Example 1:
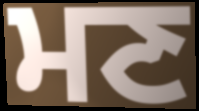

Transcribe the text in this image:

ਮਣ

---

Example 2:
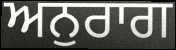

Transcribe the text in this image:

ਅਨੁਰਾਗ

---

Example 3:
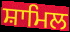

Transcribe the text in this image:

ਸ਼ਾਮਿਲ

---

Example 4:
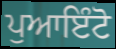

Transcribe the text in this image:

ਪੁਆਇੰਟੋ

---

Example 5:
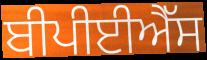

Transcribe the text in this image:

ਬੀਪੀਈਐੱਸ